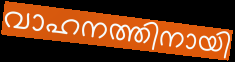
വാഹനത്തിനായി